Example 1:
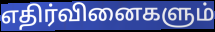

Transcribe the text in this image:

எதிர்வினைகளும்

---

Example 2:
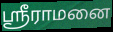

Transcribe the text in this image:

ஸ்ரீராமனை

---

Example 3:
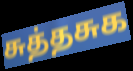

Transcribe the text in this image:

சுத்தசுக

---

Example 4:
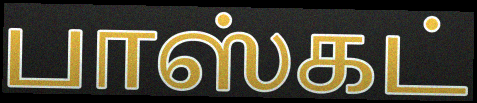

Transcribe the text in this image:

பாஸ்கட்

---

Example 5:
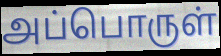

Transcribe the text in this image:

அப்பொருள்